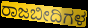
ರಾಜಬೀದಿಗಳ